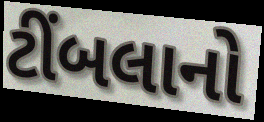
ટીંબલાનો